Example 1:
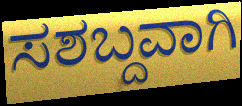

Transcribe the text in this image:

ಸಶಬ್ದವಾಗಿ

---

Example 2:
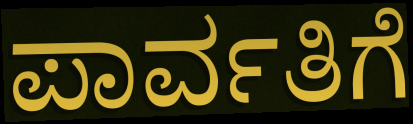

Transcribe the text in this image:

ಪಾರ್ವತಿಗೆ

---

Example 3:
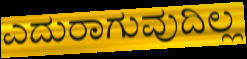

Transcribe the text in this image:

ಎದುರಾಗುವುದಿಲ್ಲ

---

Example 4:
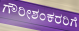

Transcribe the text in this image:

ಗೌರೀಶಂಕರರಿಗೆ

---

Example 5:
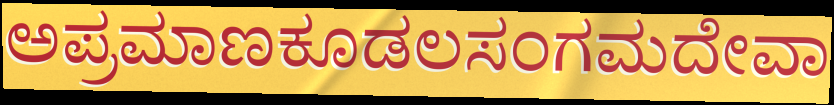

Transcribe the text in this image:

ಅಪ್ರಮಾಣಕೂಡಲಸಂಗಮದೇವಾ